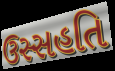
ઉસ્સહતિ